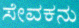
ಸೇವಕನು